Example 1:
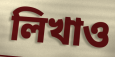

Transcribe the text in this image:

লিখাও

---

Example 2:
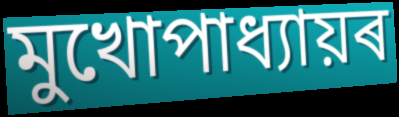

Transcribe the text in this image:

মুখোপাধ্যায়ৰ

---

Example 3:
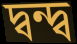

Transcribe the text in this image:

দ্বন্দ্ব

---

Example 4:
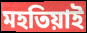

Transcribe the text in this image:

মহতিয়াই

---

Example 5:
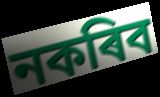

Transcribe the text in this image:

নকৰিব